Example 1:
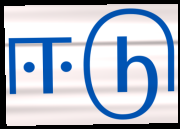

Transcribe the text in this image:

ஈடு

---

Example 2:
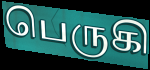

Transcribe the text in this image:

பெருகி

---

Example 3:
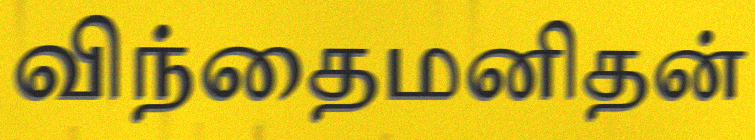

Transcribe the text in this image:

விந்தைமனிதன்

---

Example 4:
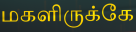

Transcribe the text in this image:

மகளிருக்கே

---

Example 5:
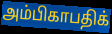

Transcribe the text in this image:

அம்பிகாபதிக்